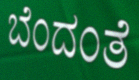
ಬೆಂದಂತೆ